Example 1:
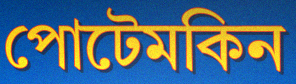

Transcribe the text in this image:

পোটেমকিন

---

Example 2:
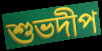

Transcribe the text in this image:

শুভদীপ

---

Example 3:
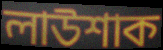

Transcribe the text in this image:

লাউশাক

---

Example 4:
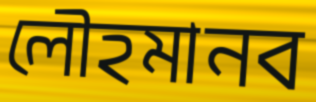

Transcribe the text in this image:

লৌহমানব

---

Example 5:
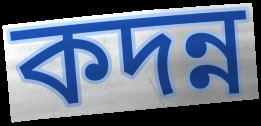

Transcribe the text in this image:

কদন্ন